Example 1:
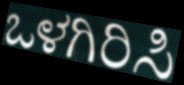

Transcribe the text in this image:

ಒಳಗಿರಿಸಿ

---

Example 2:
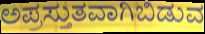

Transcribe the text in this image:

ಅಪ್ರಸ್ತುತವಾಗಿಬಿಡುವ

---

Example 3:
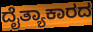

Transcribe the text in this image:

ದೈತ್ಯಾಕಾರದ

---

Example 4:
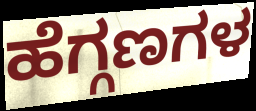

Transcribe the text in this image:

ಹೆಗ್ಗಣಗಳ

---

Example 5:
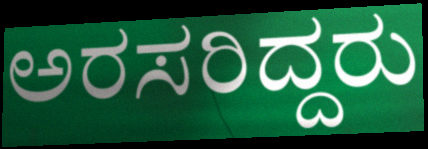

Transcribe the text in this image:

ಅರಸರಿದ್ದರು